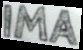
IMA